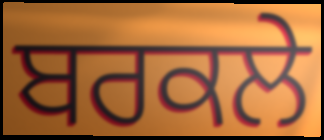
ਬਰਕਲੇ